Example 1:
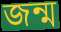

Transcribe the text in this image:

জন্ম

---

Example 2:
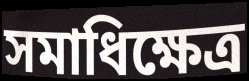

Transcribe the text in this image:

সমাধিক্ষেত্ৰ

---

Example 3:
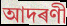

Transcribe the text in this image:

আদৰণী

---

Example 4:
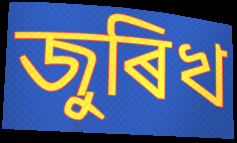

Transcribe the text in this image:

জুৰিখ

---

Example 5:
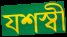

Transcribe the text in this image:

যশস্বী